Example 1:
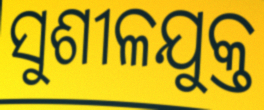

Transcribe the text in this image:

ସୁଶୀଳଯୁକ୍ତ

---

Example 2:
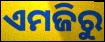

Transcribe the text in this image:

ଏମଜିରୁ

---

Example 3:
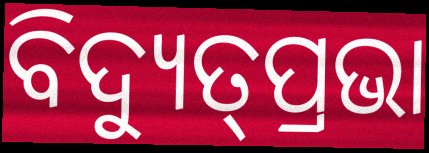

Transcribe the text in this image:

ବିଦ୍ୟୁତ୍‌ପ୍ରଭା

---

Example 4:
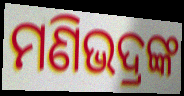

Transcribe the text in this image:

ମଣିଭଦ୍ରଙ୍କ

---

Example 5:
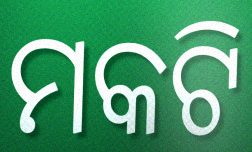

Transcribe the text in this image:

ମକଟି